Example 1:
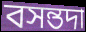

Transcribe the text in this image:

বসন্তদা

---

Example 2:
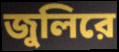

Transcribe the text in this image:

জুলিরে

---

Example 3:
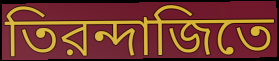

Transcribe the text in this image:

তিরন্দাজিতে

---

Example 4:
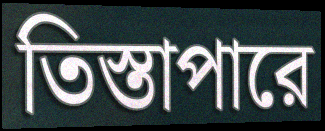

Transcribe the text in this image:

তিস্তাপারে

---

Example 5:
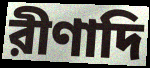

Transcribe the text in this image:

রীণাদি